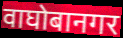
वाघोबानगर